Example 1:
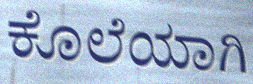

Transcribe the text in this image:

ಕೊಲೆಯಾಗಿ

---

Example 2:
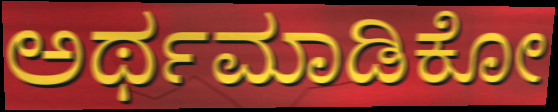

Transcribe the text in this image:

ಅರ್ಥಮಾಡಿಕೋ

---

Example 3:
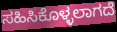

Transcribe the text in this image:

ಸಹಿಸಿಕೊಳ್ಳಲಾಗದೆ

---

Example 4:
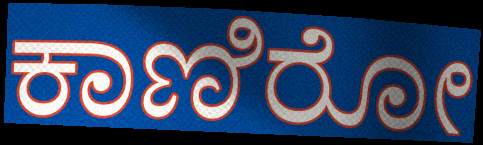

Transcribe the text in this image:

ಕಾಣಿರೋ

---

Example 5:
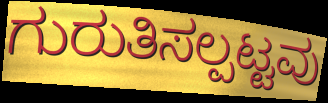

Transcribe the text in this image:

ಗುರುತಿಸಲ್ಪಟ್ಟವು